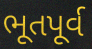
ભૂતપૂર્વ